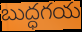
బుద్ధగయ